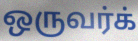
ஒருவர்க்